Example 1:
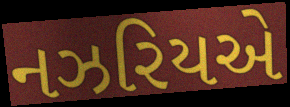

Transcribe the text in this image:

નઝરિયએ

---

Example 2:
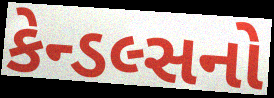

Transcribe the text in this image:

કેન્ડલ્સનો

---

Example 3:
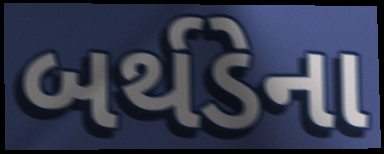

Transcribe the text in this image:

બર્થડેના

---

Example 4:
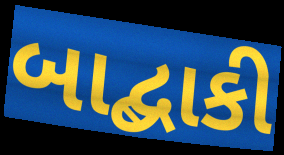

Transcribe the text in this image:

બાદ્બાકી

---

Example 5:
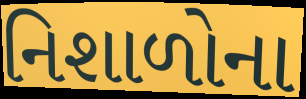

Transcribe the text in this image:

નિશાળોના